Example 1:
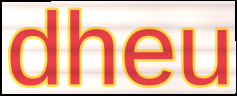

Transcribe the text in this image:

dheu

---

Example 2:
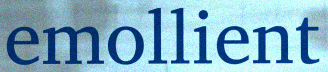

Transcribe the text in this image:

emollient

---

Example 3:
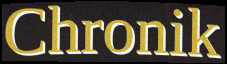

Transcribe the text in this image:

Chronik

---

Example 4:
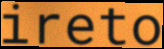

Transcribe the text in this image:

ireto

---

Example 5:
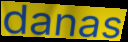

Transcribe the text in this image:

danas